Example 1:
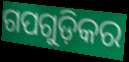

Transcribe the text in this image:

ଗପଗୁଡ଼ିକର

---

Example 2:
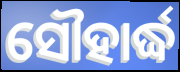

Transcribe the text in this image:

ସୌହାର୍ଦ୍ଧ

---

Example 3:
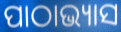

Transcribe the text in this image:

ପାଠାଭ୍ୟାସ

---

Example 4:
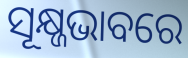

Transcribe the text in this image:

ସୂକ୍ଷ୍ଜଭାବରେ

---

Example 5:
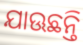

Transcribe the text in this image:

ଯାଊଛନ୍ତି